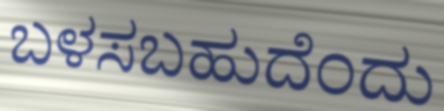
ಬಳಸಬಹುದೆಂದು